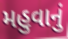
મહુવાનું